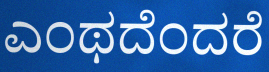
ಎಂಥದೆಂದರೆ